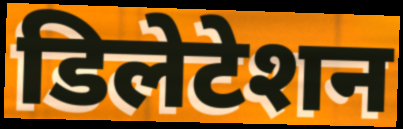
डिलेटेशन